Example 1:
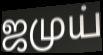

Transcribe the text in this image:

ஜமுய்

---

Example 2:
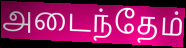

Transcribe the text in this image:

அடைந்தேம்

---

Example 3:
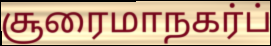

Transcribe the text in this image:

சூரைமாநகர்ப்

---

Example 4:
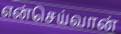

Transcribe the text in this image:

என்செய்வான்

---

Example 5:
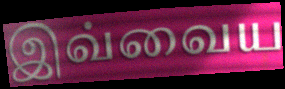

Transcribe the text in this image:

இவ்வைய